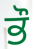
ਭੌ